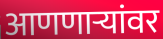
आणणाऱ्यांवर